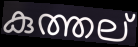
കുത്തല്